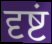
दृष्टं